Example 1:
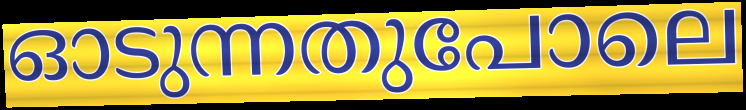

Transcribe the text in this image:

ഓടുന്നതുപോലെ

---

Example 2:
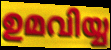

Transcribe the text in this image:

ഉമവിയ്യ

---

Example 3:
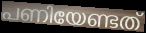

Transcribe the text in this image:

പണിയേണ്ടത്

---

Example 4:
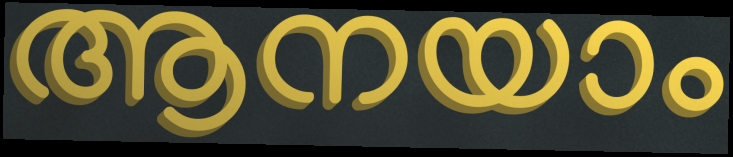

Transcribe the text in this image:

ആനയാം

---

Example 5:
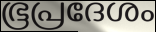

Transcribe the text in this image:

ഭൂപ്രദേശം